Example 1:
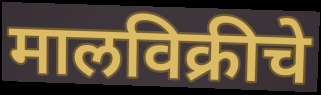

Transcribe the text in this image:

मालविक्रीचे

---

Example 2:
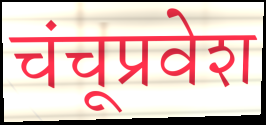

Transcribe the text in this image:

चंचूप्रवेश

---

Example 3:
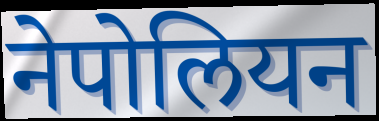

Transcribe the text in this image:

नेपोलियन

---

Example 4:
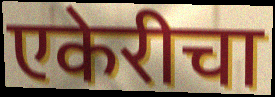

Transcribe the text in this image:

एकेरीचा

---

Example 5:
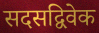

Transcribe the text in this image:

सदसद्विवेक